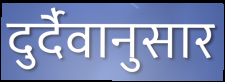
दुर्दैवानुसार